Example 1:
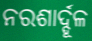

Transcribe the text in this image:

ନରଶାର୍ଦ୍ଦୂଳ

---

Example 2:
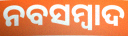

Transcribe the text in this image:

ନବସମ୍ବାଦ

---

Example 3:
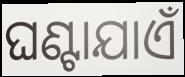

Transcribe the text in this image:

ଘଣ୍ଟାଯାଏଁ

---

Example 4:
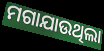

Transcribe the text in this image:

ମଗାଯାଉଥିଲା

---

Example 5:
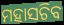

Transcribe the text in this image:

ମହାସଚିବ